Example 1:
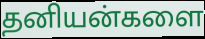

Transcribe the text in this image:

தனியன்களை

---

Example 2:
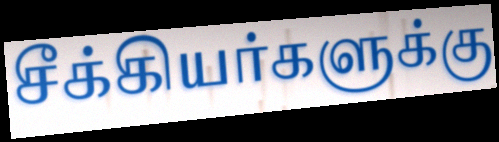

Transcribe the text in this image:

சீக்கியர்களுக்கு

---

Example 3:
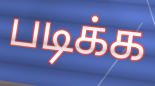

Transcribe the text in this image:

படிக்க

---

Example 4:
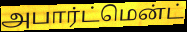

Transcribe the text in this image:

அபார்ட்மென்ட்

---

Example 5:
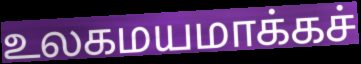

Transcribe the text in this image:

உலகமயமாக்கச்